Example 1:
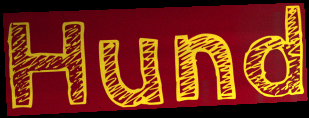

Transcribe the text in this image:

Hund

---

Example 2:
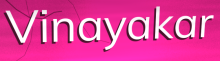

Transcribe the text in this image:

Vinayakar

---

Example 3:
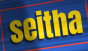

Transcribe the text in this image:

seitha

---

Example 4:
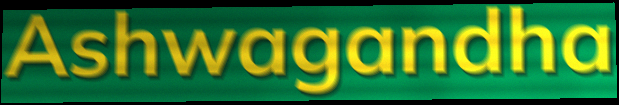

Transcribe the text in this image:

Ashwagandha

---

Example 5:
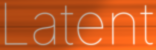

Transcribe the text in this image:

Latent